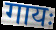
गायः